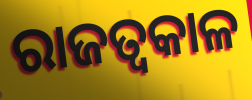
ରାଜତ୍ଵକାଳ